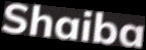
Shaiba